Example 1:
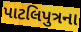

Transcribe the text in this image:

પાટલિપુત્રના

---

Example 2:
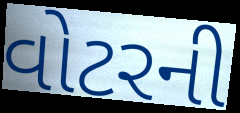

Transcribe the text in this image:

વોટરની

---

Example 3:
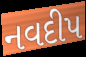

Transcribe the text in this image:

નવદીપ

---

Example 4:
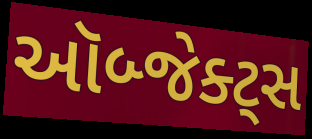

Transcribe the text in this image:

ઑબ્જેક્ટ્સ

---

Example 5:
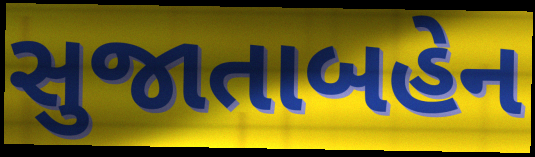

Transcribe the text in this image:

સુજાતાબહેન